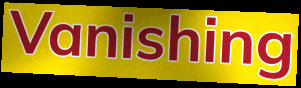
Vanishing